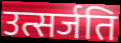
उत्सर्जति